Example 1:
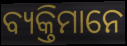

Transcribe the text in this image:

ବ୍ୟକ୍ତିମାନେ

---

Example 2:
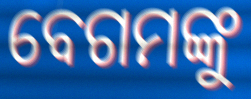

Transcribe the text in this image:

ବେଗମଙ୍କୁ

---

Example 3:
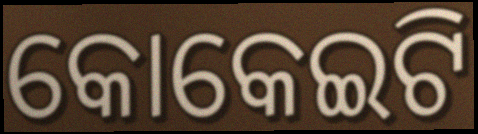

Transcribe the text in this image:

କୋକେଇଟି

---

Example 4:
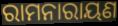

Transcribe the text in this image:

ରାମନାରାୟଣ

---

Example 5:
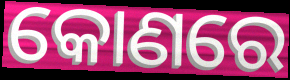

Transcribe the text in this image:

କୋଣରେ